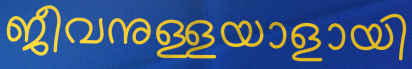
ജീവനുള്ളയാളായി